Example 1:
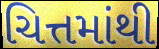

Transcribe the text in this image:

ચિત્તમાંથી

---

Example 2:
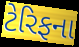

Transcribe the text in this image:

ટેરિફના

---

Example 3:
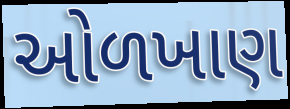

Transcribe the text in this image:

ઓળખાણ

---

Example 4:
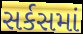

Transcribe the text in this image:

સર્કસમાં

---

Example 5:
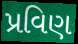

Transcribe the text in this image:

પ્રવિણ